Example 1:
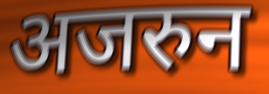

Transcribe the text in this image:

अजरुन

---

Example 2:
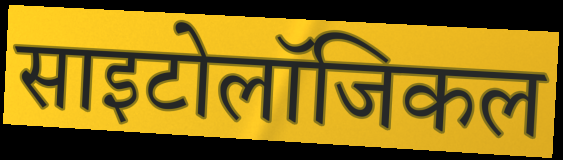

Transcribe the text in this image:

साइटोलॉजिकल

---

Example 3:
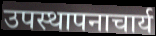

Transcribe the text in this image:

उपस्थापनाचार्य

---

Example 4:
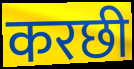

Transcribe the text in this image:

करछी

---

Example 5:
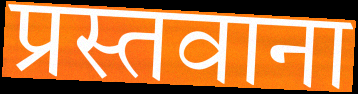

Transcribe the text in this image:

प्रस्तवाना